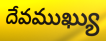
దేవముఖ్యు